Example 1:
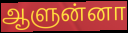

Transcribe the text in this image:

ஆளுன்னா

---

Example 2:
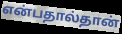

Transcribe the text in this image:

என்பதால்தான்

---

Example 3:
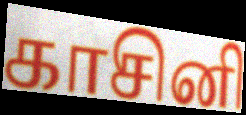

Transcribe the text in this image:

காசினி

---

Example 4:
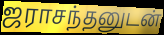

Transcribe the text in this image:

ஜராசந்தனுடன்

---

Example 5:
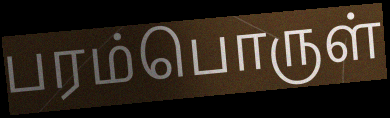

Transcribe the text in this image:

பரம்பொருள்